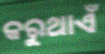
କରୁଥାଏଁ